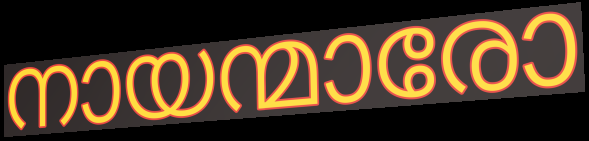
നായന്മാരോ